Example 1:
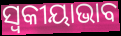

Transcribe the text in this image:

ସ୍ୱକୀୟାଭାବ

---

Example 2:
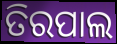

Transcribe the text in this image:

ତିରପାଲ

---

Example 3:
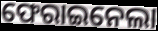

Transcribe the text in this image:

ଫେରାଇନେଲା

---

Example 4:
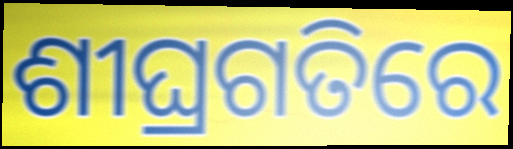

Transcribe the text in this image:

ଶୀଘ୍ରଗତିରେ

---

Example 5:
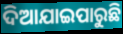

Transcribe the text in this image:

ଦିଆଯାଇପାରୁଛି